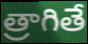
త్రాగితే